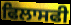
ਫਿਲਾਸਫੀ